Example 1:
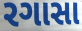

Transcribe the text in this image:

રગાસા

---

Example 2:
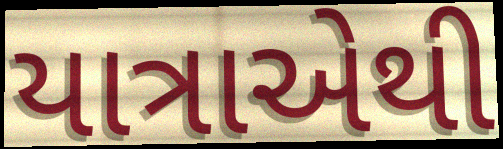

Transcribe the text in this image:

યાત્રાએથી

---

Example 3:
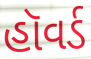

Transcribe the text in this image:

હૉવર્ડ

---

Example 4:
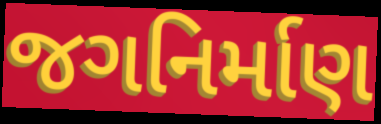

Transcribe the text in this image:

જગનિર્માણ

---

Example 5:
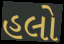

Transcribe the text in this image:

હલો